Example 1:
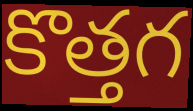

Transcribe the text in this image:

కొత్తగ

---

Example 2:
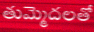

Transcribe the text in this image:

తుమ్మెదలతో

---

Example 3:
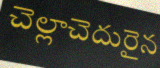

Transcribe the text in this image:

చెల్లాచెదురైన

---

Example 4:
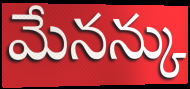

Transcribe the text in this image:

మేనన్కు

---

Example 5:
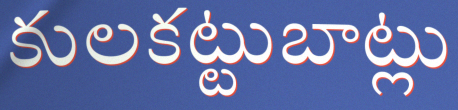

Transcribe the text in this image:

కులకట్టుబాట్లు